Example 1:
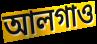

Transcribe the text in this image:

আলগাও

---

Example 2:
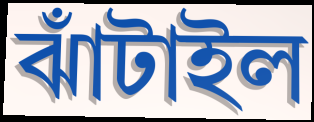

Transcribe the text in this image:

ঝাঁটাইল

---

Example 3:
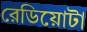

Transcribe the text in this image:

রেডিয়োটা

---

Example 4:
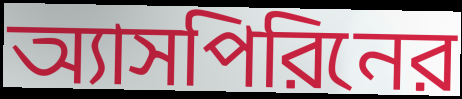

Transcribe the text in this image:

অ্যাসপিরিনের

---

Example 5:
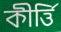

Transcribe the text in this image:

কীর্ত্তি